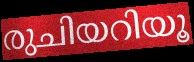
രുചിയറിയൂ